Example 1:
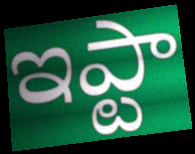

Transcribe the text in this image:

ఇప్టా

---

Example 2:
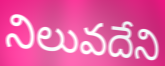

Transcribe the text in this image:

నిలువదేని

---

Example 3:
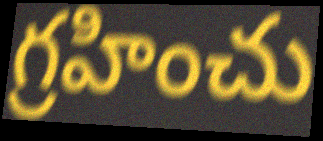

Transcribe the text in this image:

గ్రహించు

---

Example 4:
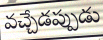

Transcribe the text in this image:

వచ్చేడప్పుడు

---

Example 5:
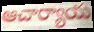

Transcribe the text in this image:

ఆచార్యాయ